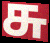
சு